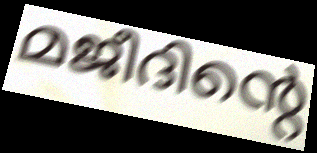
മജീദിന്റെ